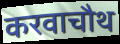
करवाचौथ